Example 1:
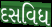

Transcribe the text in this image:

દસવિધ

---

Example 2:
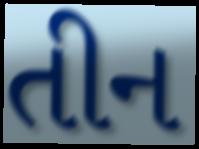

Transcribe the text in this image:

તીન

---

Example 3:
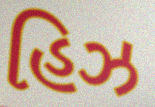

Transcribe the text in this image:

હિઝ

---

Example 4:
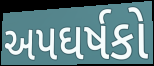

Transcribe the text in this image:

અપઘર્ષકો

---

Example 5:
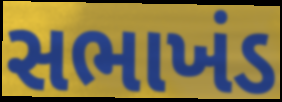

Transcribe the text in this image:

સભાખંડ